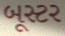
બૂસ્ટર